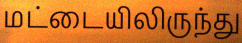
மட்டையிலிருந்து